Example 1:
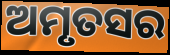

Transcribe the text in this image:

ଅମୃତସର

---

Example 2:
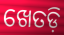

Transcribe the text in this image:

ଖେତଡ଼ି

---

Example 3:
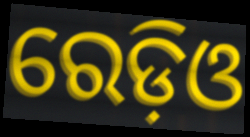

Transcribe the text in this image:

ରେଡ଼ିଓ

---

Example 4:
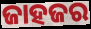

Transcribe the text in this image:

ଜାହଜର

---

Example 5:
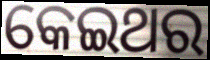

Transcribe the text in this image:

କେଇଥର